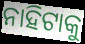
ନାହିଟାକୁ